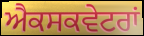
ਐਕਸਕਵੇਟਰਾਂ